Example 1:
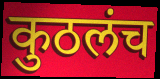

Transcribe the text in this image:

कुठलंच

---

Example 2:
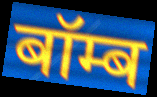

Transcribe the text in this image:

बॉम्ब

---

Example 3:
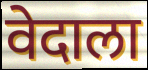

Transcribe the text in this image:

वेदाला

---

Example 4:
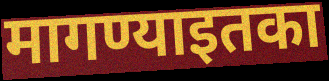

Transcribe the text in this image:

मागण्याइतका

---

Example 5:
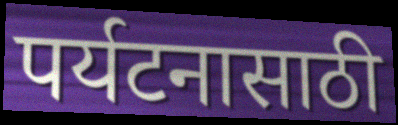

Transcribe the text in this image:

पर्यटनासाठी